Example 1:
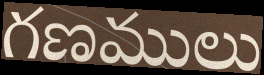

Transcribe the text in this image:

గణములు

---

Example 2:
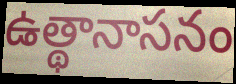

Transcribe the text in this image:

ఉత్థానాసనం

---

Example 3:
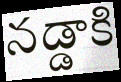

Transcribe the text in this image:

నడ్డాకి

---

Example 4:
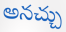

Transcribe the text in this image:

అనచ్చు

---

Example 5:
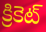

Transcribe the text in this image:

క్రికెట్